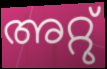
അറ്റു്